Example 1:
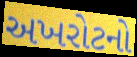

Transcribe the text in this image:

અખરોટનો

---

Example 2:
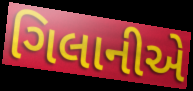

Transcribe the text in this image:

ગિલાનીએ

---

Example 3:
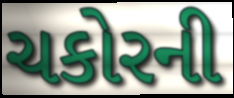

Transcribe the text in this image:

ચકોરની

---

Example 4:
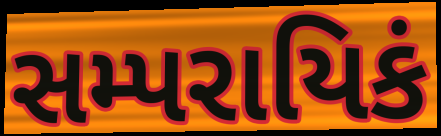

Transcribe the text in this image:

સમ્પરાયિકં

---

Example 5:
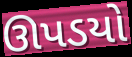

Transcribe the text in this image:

ઊપડયો